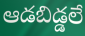
ఆడబిడ్డలే